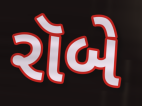
રૉબે